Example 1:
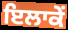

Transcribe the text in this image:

ਇਲਾਕੇਂ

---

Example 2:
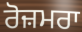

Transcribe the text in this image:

ਰੋਜ਼ਮਰਾ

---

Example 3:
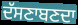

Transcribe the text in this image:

ਦੱਸਣਾਬਣਦਾ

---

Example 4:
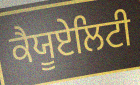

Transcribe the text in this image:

ਕੈਯੂਏਲਿਟੀ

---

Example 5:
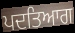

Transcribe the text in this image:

ਪਦਤਿਆਗ